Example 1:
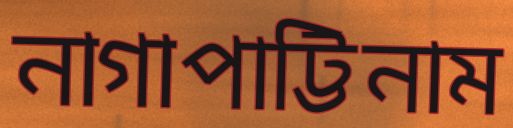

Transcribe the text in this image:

নাগাপাট্টিনাম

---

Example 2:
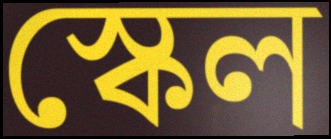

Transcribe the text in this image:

স্কেল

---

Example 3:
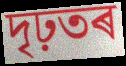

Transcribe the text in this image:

দৃঢ়তৰ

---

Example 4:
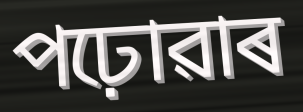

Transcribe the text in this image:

পঢ়োৱাৰ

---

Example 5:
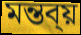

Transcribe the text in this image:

মন্তব্য়